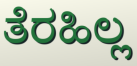
ತೆರಹಿಲ್ಲ